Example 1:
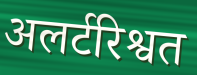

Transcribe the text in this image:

अलर्टरिश्वत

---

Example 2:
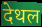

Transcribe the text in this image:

देथल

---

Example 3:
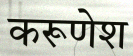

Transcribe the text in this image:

करूणेश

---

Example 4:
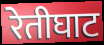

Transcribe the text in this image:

रेतीघाट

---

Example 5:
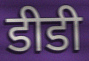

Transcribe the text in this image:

डीडी